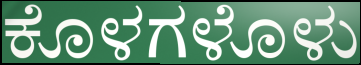
ಕೊಳಗಳೊಳು